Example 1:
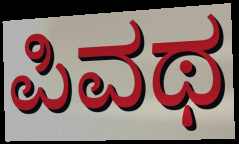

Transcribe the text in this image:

ಪಿವಥ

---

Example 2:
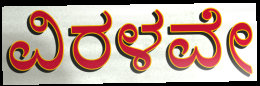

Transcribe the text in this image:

ವಿರಳವೇ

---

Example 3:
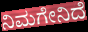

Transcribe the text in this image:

ನಿಮಗೇನಿದೆ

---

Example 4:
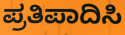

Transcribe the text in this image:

ಪ್ರತಿಪಾದಿಸಿ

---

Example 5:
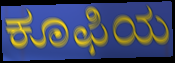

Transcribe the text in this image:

ಕೂಫಿಯ